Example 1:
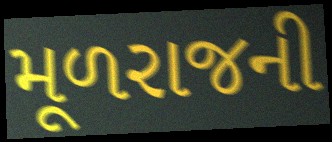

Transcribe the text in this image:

મૂળરાજની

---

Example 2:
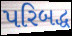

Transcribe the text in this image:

પરિબદ્ધ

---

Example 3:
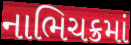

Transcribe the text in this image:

નાભિચક્રમાં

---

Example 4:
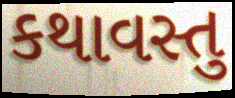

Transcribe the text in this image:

કથાવસ્તુ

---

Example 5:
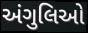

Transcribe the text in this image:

અંગુલિઓ